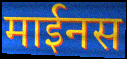
माईनस